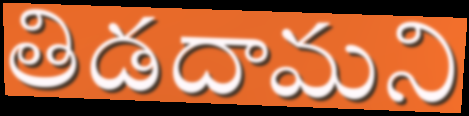
తిడదామని